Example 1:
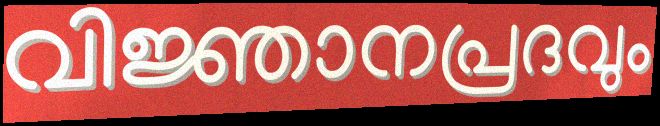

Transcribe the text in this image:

വിജ്ഞാനപ്രദവും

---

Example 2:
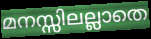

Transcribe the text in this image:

മനസ്സിലല്ലാതെ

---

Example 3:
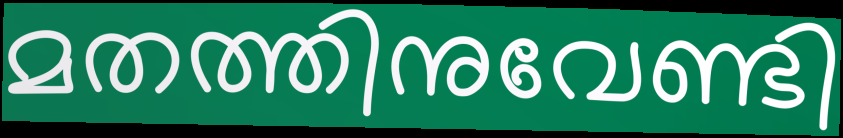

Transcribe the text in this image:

മതത്തിനുവേണ്ടി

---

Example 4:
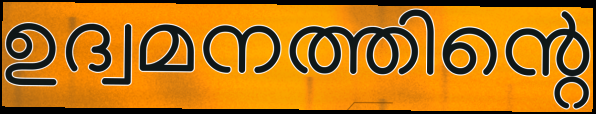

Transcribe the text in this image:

ഉദ്വമനത്തിന്റെ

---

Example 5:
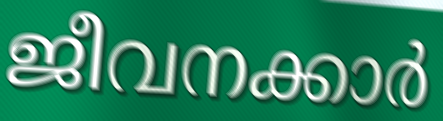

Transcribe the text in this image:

ജീവനക്കാർ